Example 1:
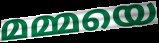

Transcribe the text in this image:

മമ്മയെ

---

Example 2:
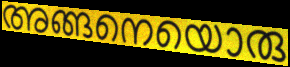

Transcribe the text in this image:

അങ്ങനെയൊരു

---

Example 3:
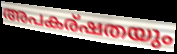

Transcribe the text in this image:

അപകര്ഷതയും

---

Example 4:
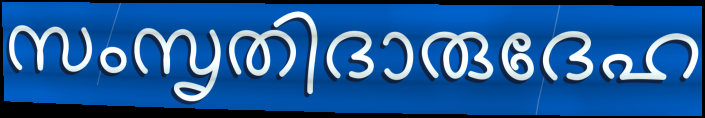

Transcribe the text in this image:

സംസൃതിദാരുദേഹ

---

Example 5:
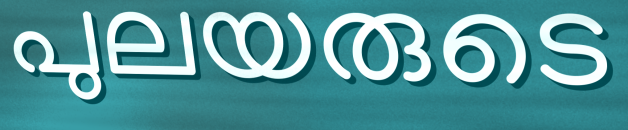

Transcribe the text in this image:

പുലയരുടെ